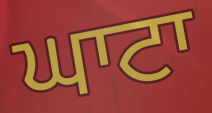
ਘਾਟਾ